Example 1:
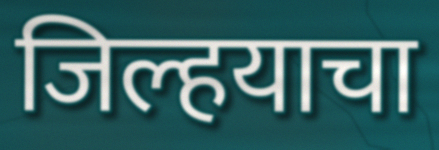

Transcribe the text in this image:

जिल्हयाचा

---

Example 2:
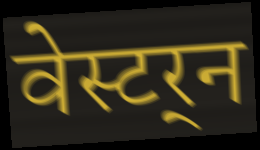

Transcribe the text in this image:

वेस्टर्न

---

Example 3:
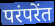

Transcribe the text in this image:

परंपरेंत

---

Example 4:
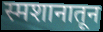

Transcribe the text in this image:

स्मशानातून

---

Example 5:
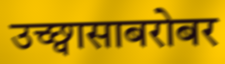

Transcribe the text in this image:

उच्छ्वासाबरोबर